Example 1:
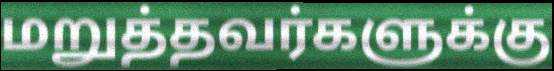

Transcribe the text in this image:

மறுத்தவர்களுக்கு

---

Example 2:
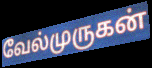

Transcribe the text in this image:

வேல்முருகன்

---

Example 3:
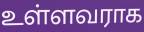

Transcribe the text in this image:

உள்ளவராக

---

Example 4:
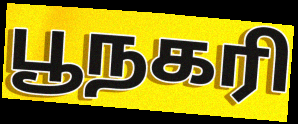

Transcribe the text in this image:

பூநகரி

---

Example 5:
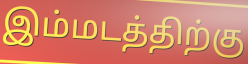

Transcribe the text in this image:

இம்மடத்திற்கு